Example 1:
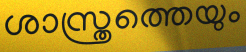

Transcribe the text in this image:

ശാസ്ത്രത്തെയും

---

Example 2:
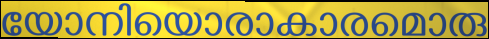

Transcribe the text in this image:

യോനിയൊരാകാരമൊരു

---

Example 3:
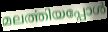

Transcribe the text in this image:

മലൎത്തിയപ്പോൾ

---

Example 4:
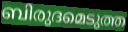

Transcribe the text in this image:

ബിരുദമെടുത്ത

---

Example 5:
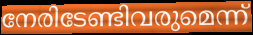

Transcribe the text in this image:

നേരിടേണ്ടിവരുമെന്ന്